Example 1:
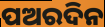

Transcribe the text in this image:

ପଅରଦିନ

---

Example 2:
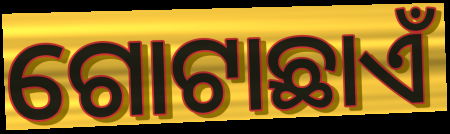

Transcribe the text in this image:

ଗୋଟାଛାଏଁ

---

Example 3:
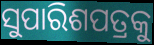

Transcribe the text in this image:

ସୁପାରିଶପତ୍ରକୁ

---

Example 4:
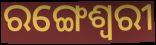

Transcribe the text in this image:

ରଙ୍ଗେଶ୍ୱରୀ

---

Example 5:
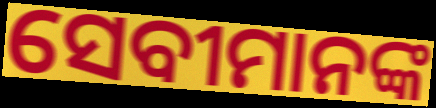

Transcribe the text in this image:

ସେବୀମାନଙ୍କ